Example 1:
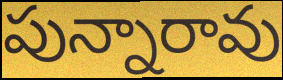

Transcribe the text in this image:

పున్నారావు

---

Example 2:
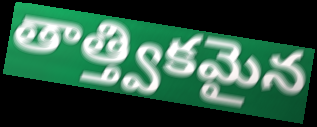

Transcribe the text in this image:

తాత్త్వికమైన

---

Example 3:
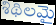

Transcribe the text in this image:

శిథిలమై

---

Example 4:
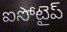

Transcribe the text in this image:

ఐసోటైప్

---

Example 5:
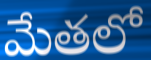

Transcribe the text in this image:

మేతలో